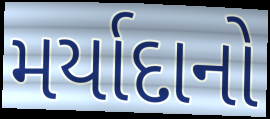
મર્યાદાનો